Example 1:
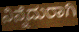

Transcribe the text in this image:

ನಿನ್ನೆದುರಾಗಿ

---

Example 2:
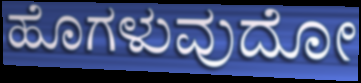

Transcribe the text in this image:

ಹೊಗಳುವುದೋ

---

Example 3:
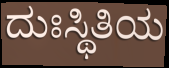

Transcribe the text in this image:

ದುಃಸ್ಥಿತಿಯ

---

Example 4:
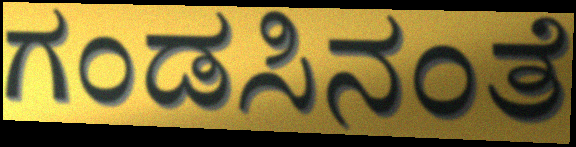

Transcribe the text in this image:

ಗಂಡಸಿನಂತೆ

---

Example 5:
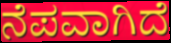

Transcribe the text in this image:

ನೆಪವಾಗಿದೆ